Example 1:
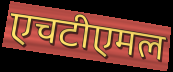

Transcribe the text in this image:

एचटीएमल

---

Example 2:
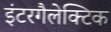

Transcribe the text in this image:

इंटरगैलेक्टिक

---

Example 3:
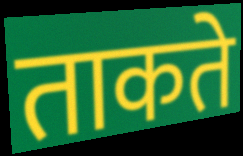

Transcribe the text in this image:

ताकते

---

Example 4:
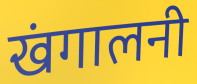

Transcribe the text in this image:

खंगालनी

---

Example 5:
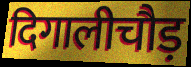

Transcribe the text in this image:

दिगालीचौड़